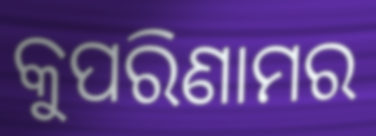
କୁପରିଣାମର